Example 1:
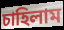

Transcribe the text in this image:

চাহিলাম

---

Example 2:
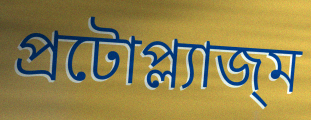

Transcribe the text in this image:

প্রটোপ্ল্যাজ্ম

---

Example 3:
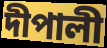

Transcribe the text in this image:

দীপালী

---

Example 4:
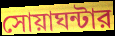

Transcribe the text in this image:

সোয়াঘন্টার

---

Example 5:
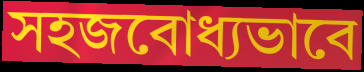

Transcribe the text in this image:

সহজবোধ্যভাবে